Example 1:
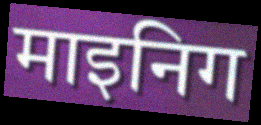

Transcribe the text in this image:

माइनिग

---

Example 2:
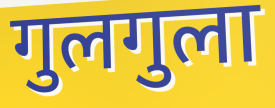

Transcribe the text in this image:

गुलगुला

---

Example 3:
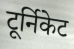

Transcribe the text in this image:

टूर्निकेट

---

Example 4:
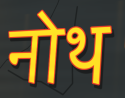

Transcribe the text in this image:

नोथ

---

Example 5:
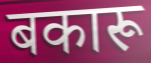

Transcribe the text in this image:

बकारू